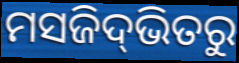
ମସଜିଦ୍‌ଭିତରୁ